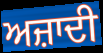
ਅਜ਼ਾਦੀ